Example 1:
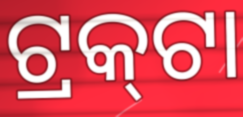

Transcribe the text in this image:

ଟ୍ରକ୍‌ଟା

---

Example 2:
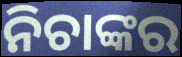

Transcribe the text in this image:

ନିଚାଙ୍କର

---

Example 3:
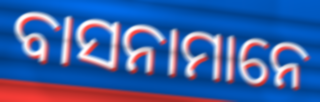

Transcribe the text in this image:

ବାସନାମାନେ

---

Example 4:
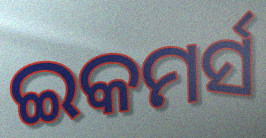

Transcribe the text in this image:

ଇକମର୍ସ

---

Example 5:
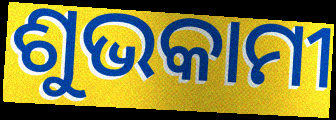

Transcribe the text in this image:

ଶୁଭକାମୀ